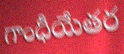
గాంధీయేతర